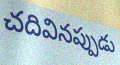
చదివినప్పుడు